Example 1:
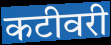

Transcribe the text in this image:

कटीवरी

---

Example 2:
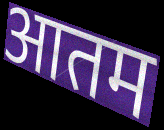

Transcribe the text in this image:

आतम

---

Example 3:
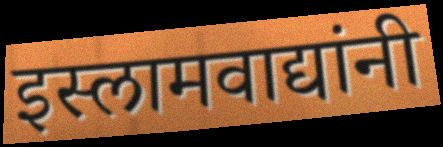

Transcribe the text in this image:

इस्लामवाद्यांनी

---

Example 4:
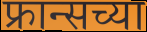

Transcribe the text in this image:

फ्रान्सच्या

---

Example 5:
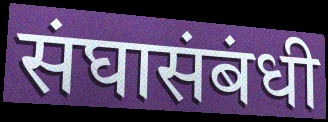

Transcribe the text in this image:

संघासंबंधी